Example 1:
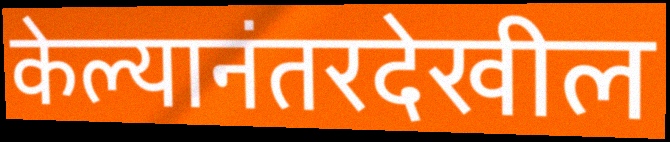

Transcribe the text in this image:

केल्यानंतरदेखील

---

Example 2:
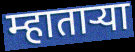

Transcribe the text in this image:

म्हातार्‍या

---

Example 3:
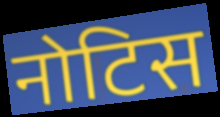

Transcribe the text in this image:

नोटिस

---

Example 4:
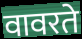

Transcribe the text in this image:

वावरते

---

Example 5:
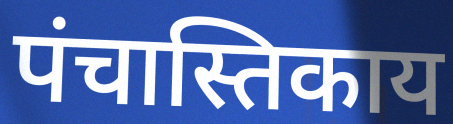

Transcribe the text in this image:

पंचास्तिकाय